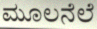
ಮೂಲನೆಲೆ